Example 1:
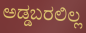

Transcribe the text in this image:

ಅಡ್ಡಬರಲಿಲ್ಲ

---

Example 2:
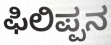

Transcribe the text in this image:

ಫಿಲಿಪ್ಪನ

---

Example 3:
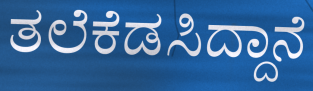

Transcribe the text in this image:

ತಲೆಕೆಡಸಿದ್ದಾನೆ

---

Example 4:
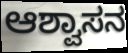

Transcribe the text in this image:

ಆಶ್ವಾಸನ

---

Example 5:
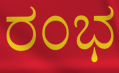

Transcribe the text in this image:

ರಂಭ